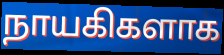
நாயகிகளாக